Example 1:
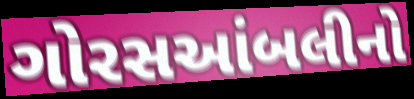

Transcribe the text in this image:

ગોરસઆંબલીનો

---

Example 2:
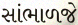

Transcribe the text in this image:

સાંભાળજે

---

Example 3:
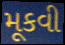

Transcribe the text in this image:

મૂકવી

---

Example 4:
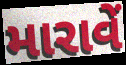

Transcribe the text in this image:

મારાવેં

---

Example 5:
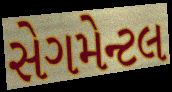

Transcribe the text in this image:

સેગમેન્ટલ